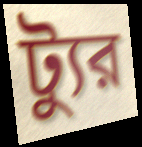
ট্যুর